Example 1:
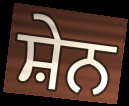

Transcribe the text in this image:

ਸ਼ੇਨ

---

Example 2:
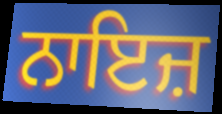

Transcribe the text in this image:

ਨਾਇਜ਼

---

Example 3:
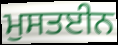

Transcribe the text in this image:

ਮੁਸਤਈਨ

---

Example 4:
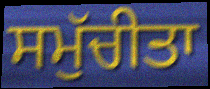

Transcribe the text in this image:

ਸਮੁੱਚੀਤਾ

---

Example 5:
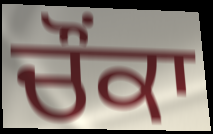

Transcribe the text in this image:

ਚੌਂਕਾ